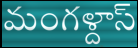
మంగళ్దాస్